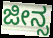
ಜೀನ್ಸ